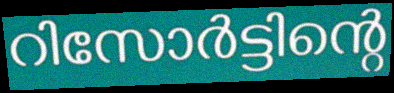
റിസോർട്ടിന്റെ